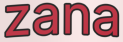
zana